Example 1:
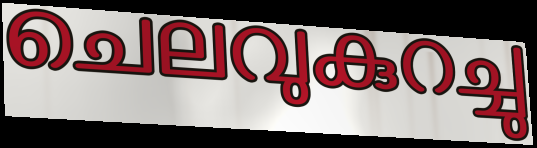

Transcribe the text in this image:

ചെലവുകുറച്ചു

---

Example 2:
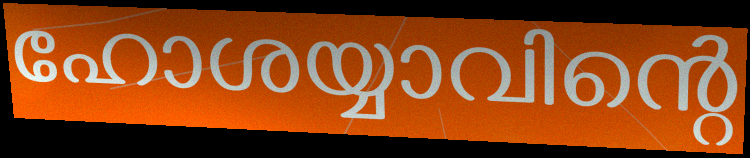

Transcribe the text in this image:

ഹോശയ്യാവിന്റെ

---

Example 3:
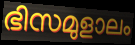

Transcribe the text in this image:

ഭിസമുളാലം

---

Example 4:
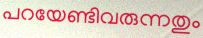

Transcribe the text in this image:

പറയേണ്ടിവരുന്നതും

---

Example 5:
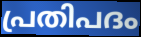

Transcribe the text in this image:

പ്രതിപദം